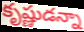
కృష్ణుడన్నా